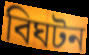
বিঘটন